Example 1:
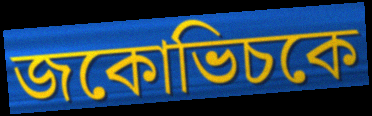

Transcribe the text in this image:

জকোভিচকে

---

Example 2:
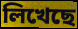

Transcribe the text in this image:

লিখেছে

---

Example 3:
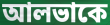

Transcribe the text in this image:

আলভাকে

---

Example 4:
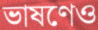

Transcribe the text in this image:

ভাষণেও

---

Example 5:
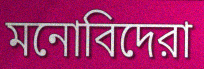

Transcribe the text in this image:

মনোবিদেরা